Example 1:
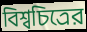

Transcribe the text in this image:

বিশ্বচিত্রের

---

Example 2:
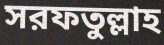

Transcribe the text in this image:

সরফতুল্লাহ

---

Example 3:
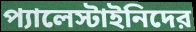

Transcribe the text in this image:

প্যালেস্টাইনিদের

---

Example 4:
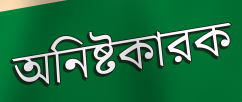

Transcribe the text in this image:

অনিষ্টকারক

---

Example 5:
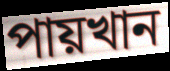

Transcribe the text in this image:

পায়খান